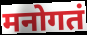
मनोगतं